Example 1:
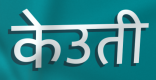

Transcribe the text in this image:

केउती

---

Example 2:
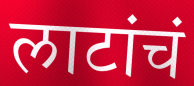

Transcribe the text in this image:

लाटांचं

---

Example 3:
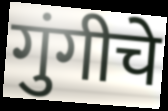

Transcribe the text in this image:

गुंगीचे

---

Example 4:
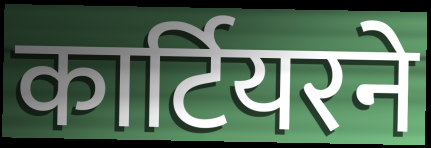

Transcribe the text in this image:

कार्टियरने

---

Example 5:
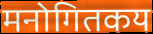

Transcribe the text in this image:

मनोगितकय